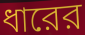
ধারের